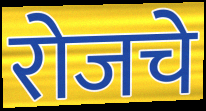
रोजचे